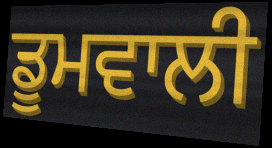
ਡੂਮਵਾਲੀ